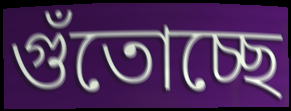
গুঁতোচ্ছে